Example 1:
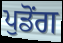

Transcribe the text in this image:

ਪੁਡੋਂਗ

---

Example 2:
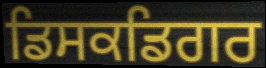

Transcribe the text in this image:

ਡਿਸਕਡਿਗਰ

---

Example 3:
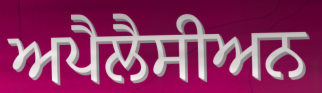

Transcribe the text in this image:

ਅਪੈਲੈਸੀਅਨ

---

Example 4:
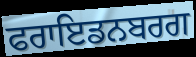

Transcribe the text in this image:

ਫਰਾਇਡਨਬਰਗ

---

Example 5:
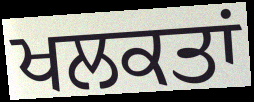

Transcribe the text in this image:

ਖਲਕਤਾਂ